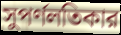
সুপর্ণলতিকার